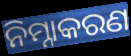
ନିମ୍ନାକରଣ